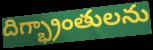
దిగ్భ్రాంతులను